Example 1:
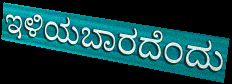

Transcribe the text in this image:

ಇಳಿಯಬಾರದೆಂದು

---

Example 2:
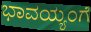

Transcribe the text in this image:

ಭಾವಯ್ಯಂಗೆ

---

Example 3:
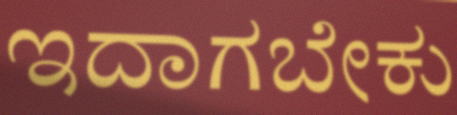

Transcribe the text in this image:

ಇದಾಗಬೇಕು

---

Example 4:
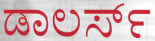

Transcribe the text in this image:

ಡಾಲರ್ಸ್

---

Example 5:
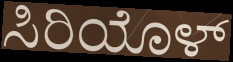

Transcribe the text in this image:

ಸಿರಿಯೊಳ್